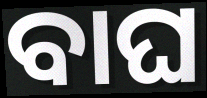
ବାଘ